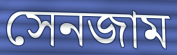
সেনজাম